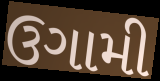
ઉગામી